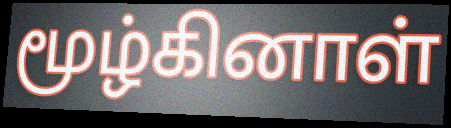
மூழ்கினாள்